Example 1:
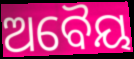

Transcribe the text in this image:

ଅବୈୟ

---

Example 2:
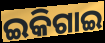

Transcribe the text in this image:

ଇକିଗାଇ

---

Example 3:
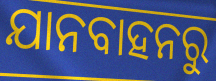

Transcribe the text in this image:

ଯାନବାହନରୁ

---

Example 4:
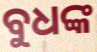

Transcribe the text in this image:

ବୁଧଙ୍କ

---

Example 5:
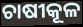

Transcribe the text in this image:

ଚାଷୀକୂଳ